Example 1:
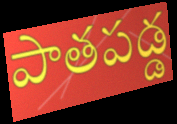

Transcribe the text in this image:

పాతపడ్డ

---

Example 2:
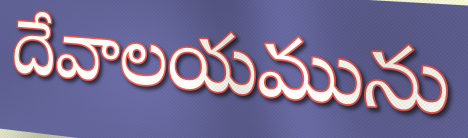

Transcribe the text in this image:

దేవాలయమును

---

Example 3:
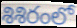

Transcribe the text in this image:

శిశిరంలో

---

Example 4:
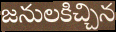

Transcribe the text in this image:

జనులకిచ్చిన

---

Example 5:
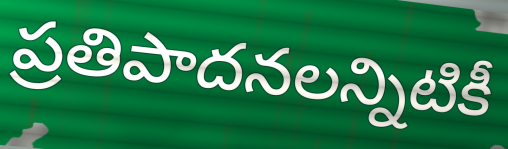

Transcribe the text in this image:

ప్రతిపాదనలన్నిటికీ